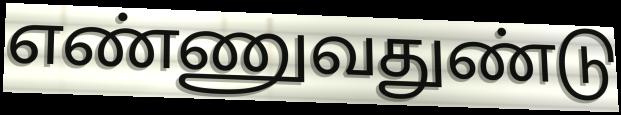
எண்ணுவதுண்டு